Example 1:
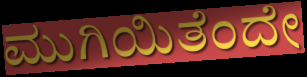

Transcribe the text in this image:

ಮುಗಿಯಿತೆಂದೇ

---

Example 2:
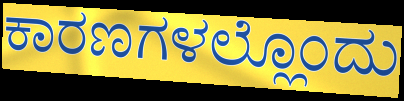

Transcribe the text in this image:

ಕಾರಣಗಳಲ್ಲೊಂದು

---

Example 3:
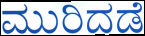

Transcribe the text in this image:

ಮುರಿದಡೆ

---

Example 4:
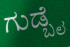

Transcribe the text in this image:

ಗುಡ್ಬೈ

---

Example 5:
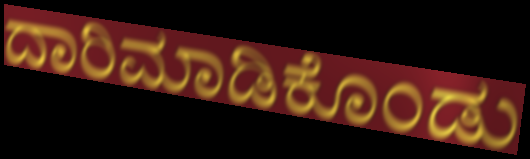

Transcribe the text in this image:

ದಾರಿಮಾಡಿಕೊಂಡು